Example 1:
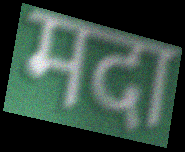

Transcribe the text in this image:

मदा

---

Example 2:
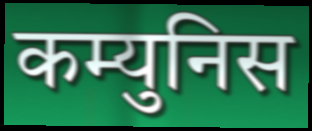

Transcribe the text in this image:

कम्युनिस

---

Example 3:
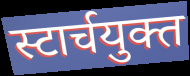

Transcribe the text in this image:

स्टार्चयुक्त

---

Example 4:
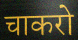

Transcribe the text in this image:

चाकरो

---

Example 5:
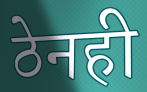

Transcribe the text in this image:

ठेनही